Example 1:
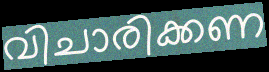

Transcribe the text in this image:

വിചാരിക്കണ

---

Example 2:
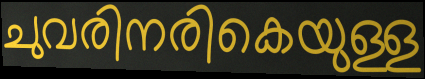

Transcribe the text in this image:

ചുവരിനരികെയുള്ള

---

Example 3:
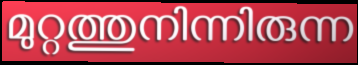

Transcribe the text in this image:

മുറ്റത്തുനിന്നിരുന്ന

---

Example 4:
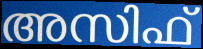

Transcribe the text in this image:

അസിഫ്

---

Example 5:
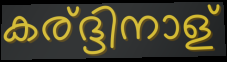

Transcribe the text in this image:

കര്ദ്ദിനാള്